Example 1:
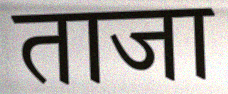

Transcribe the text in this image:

ताजा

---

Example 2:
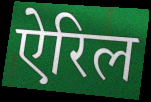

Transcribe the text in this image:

ऐरिल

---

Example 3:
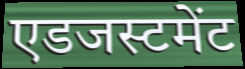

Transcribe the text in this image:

एडजस्‍टमेंट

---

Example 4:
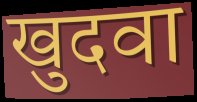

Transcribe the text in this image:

खुदवा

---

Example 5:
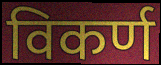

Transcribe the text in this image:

विकर्ण